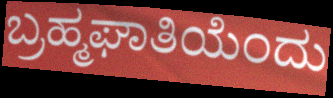
ಬ್ರಹ್ಮಘಾತಿಯೆಂದು